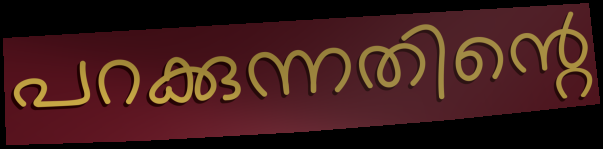
പറക്കുന്നതിന്റെ